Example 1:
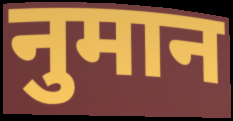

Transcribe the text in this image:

नुमान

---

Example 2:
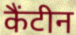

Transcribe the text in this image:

कैंटीन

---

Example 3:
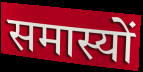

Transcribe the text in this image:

समास्यों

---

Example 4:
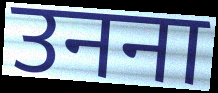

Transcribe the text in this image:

उनना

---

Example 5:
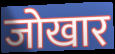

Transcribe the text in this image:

जोखार